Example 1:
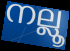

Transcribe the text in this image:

നല്ലൂ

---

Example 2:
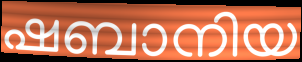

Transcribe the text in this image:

ഷബാനിയ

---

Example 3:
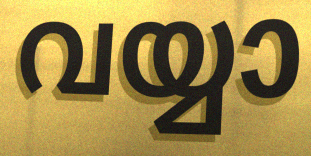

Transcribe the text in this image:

വയ്യാ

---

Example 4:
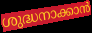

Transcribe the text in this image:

ശുദ്ധനാക്കാൻ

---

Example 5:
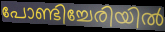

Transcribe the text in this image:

പോണ്ടിച്ചേരിയിൽ